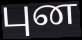
புன